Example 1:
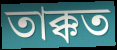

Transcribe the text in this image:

তাক্কত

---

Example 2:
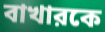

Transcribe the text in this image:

বাখারকে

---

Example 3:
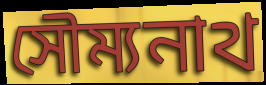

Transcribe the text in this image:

সৌম্যনাথ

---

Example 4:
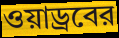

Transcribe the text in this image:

ওয়াড্রবের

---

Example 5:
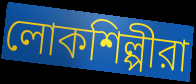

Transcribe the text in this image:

লোকশিল্পীরা